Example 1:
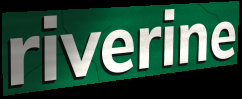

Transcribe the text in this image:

riverine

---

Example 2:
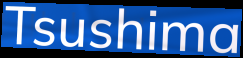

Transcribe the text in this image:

Tsushima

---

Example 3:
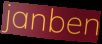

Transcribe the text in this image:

janben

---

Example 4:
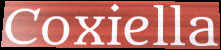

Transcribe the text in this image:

Coxiella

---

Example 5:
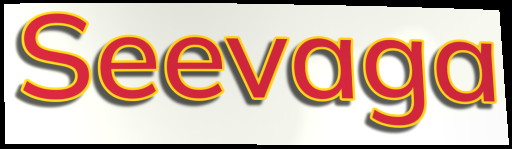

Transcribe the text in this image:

Seevaga